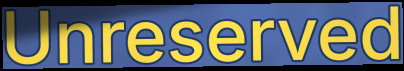
Unreserved